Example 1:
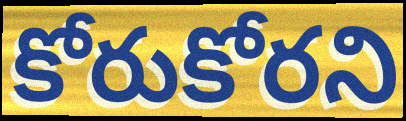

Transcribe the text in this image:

కోరుకోరని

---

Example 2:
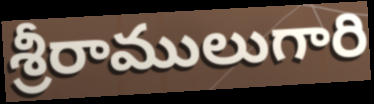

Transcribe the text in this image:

శ్రీరాములుగారి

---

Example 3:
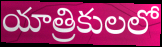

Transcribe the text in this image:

యాత్రికులలో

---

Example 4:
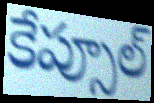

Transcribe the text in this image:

కేప్సూల్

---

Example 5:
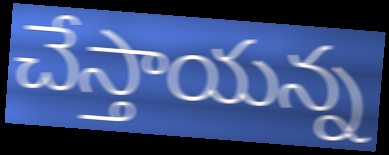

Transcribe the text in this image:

చేస్తాయన్న